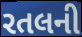
રતલની